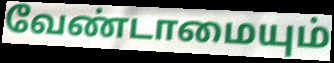
வேண்டாமையும்